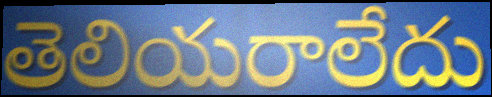
తెలియరాలేదు